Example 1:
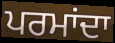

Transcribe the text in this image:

ਪਰਮਾਂਦਾ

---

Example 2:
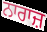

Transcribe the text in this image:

ਨਾਰਾਜ਼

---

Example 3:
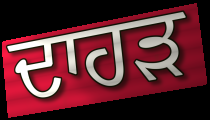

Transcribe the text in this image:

ਦਾਹੜ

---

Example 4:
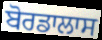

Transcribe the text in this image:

ਬੋਰਡਾਲਾਸ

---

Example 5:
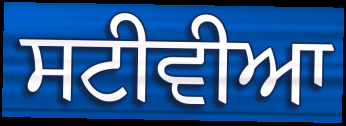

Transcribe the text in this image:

ਸਟੀਵੀਆ